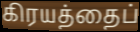
கிரயத்தைப்